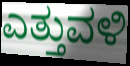
ಎತ್ತುವಳಿ